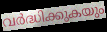
വർദ്ധിക്കുകയും